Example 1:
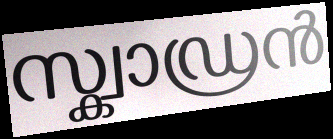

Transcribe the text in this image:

സ്ക്വാഡ്രൻ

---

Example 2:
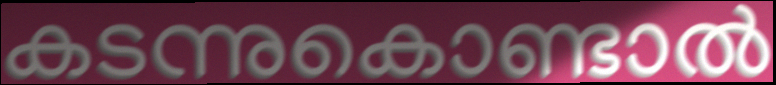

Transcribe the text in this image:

കടന്നുകൊണ്ടാൽ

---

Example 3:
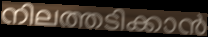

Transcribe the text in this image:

നിലത്തടിക്കാൻ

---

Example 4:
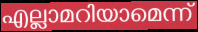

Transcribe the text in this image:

എല്ലാമറിയാമെന്ന്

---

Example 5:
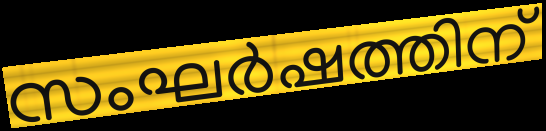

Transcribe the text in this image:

സംഘർഷത്തിന്